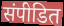
संपीडित